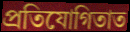
প্ৰতিযোগিতাত